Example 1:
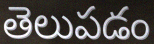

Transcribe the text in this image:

తెలుపడం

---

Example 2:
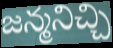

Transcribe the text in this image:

జన్మనిచ్చి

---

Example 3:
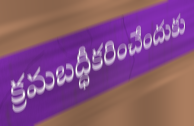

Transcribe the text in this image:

క్రమబద్ధీకరించేందుకు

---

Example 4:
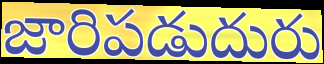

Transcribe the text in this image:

జారిపడుదురు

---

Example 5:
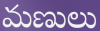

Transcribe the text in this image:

మణులు